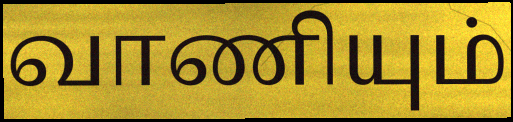
வாணியும்